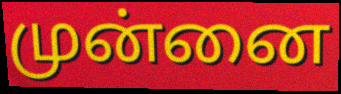
முன்னை